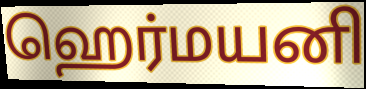
ஹெர்மயனி